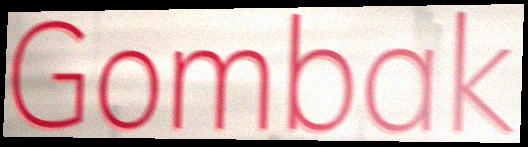
Gombak